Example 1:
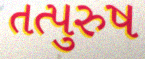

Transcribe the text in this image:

તત્પુરુષ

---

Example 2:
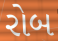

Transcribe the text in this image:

રોબ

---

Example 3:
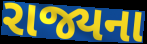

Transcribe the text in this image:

રાજ્યના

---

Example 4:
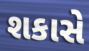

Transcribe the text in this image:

શકાસે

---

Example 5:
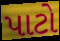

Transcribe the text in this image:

પાટો